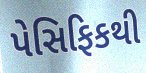
પેસિફિકથી